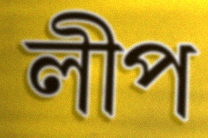
লীপ